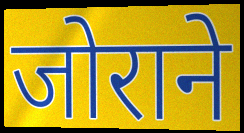
जोराने